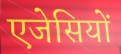
एजेसियों